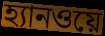
হ্যানওয়ে